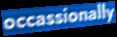
occassionally